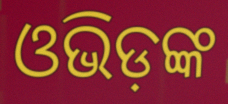
ଓଭିଡ଼ଙ୍କ